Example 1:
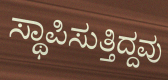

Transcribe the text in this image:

ಸ್ಥಾಪಿಸುತ್ತಿದ್ದವು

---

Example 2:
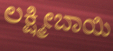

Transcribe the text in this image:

ಲಕ್ಷ್ಮೀಬಾಯಿ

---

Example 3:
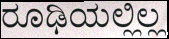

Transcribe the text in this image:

ರೂಢಿಯಲ್ಲಿಲ್ಲ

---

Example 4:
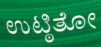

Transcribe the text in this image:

ಉಟ್ಠಿತೋ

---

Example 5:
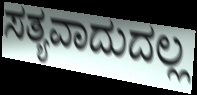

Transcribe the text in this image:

ಸತ್ಯವಾದುದಲ್ಲ